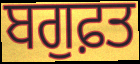
ਬਗੁਫ਼ਤ